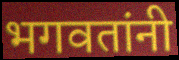
भगवतांनी